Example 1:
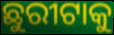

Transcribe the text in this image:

ଛୁରୀଟାକୁ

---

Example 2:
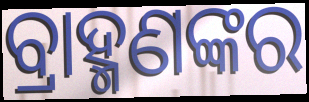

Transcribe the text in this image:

ବ୍ରାହ୍ମଣଙ୍କର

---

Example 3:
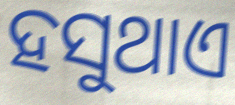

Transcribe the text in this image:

ହସୁଥାଏ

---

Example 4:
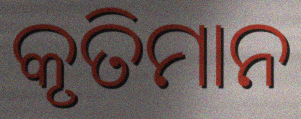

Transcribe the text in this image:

କୃତିମାନ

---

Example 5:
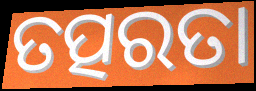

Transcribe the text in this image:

ତତ୍ପରତା